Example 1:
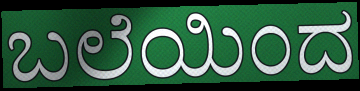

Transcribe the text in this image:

ಬಲೆಯಿಂದ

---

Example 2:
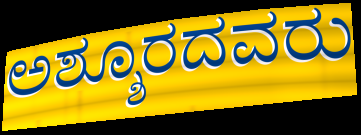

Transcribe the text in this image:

ಅಶ್ಶೂರದವರು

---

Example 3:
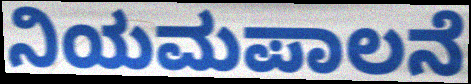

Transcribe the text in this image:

ನಿಯಮಪಾಲನೆ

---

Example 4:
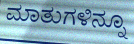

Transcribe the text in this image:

ಮಾತುಗಳಿನ್ನೂ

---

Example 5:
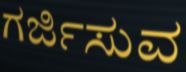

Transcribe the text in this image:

ಗರ್ಜಿಸುವ